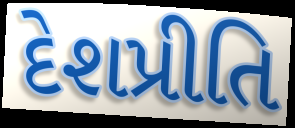
દેશપ્રીતિ